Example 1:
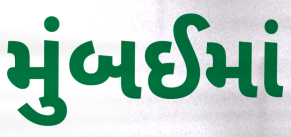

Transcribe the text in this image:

મુંબઈમાં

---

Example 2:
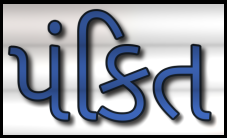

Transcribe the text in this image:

પંકિત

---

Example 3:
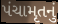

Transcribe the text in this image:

પંચામૃતનું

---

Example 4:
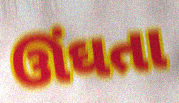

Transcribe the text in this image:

ઊંઘતા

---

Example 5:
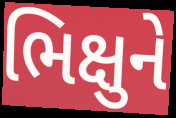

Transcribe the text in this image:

ભિક્ષુને